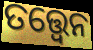
ତତ୍ତ୍ଵେନ